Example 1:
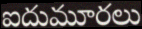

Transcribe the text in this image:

ఐదుమూరలు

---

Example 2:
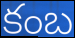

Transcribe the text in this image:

కంబ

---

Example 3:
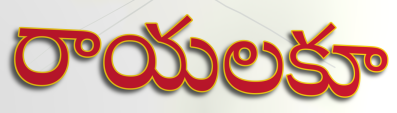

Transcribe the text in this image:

రాయలకూ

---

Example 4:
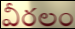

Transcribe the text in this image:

వీరలం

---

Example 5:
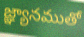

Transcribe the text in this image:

జ్ఞ్యానముతో